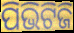
ପିଭିଟିଜି